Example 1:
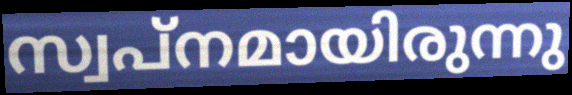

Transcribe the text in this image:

സ്വപ്നമായിരുന്നു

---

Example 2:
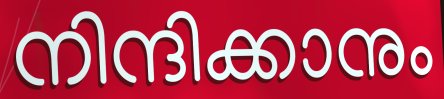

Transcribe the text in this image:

നിന്ദിക്കാനും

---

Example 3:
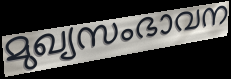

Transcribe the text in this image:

മുഖ്യസംഭാവന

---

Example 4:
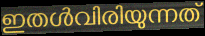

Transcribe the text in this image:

ഇതൾവിരിയുന്നത്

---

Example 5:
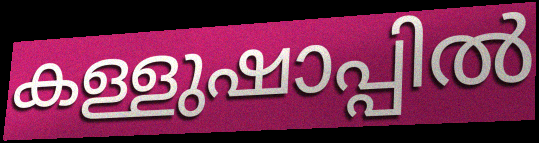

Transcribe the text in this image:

കള്ളുഷാപ്പിൽ